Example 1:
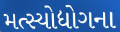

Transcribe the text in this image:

મત્સ્યોદ્યોગના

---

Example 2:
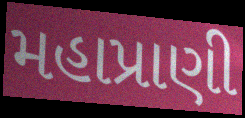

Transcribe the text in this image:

મહાપ્રાણી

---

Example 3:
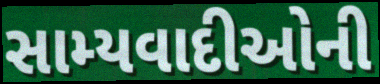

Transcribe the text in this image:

સામ્યવાદીઓની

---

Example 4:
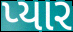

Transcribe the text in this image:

પ્યાર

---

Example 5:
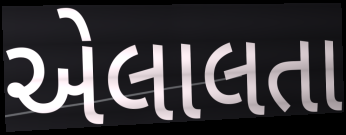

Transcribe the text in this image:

એલાલતા